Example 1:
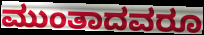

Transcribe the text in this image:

ಮುಂತಾದವರೂ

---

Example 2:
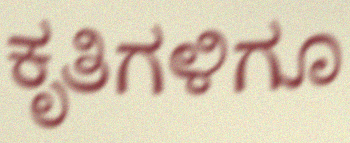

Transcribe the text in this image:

ಕೃತಿಗಳಿಗೂ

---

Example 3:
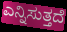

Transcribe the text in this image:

ಎನ್ನಿಸುತ್ತದೆ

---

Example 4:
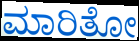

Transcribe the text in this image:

ಮಾರಿತೋ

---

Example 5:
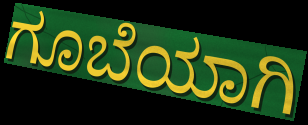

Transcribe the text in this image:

ಗೂಬೆಯಾಗಿ